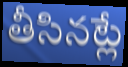
తీసినట్లే